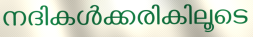
നദികൾക്കരികിലൂടെ